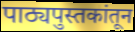
पाठ्यपुस्तकांतून